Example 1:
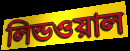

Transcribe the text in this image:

লিন্ডওয়াল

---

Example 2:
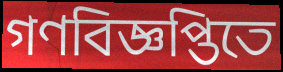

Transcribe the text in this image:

গণবিজ্ঞপ্তিতে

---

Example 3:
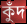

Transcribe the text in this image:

কুঁদ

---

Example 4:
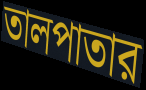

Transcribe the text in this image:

তালপাতার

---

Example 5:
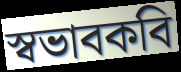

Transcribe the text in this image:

স্বভাবকবি